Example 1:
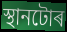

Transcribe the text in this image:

স্থানটোৰ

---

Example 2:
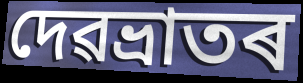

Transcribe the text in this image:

দেৱভ্ৰাতৰ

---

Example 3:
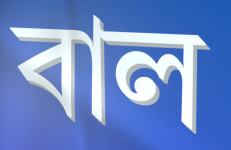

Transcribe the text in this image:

বাল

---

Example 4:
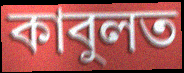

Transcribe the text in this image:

কাবুলত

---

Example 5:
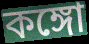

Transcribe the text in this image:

কঙ্গো